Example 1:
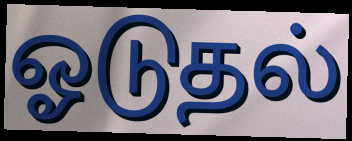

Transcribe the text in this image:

ஓடுதல்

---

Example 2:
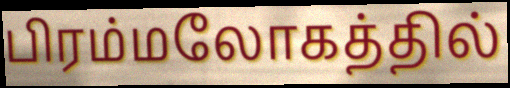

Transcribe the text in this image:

பிரம்மலோகத்தில்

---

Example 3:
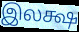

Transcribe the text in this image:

இலக்ஷ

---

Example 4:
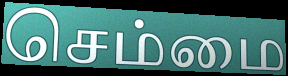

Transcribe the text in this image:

செம்மை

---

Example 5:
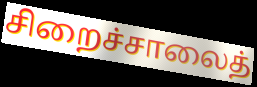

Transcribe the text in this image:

சிறைச்சாலைத்